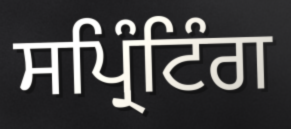
ਸਪ੍ਰਿੰਟਿੰਗ